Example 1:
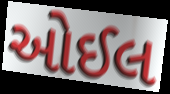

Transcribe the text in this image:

ઓઈલ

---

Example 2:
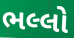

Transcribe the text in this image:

ભલ્લો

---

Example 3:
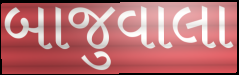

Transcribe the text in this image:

બાજુવાલા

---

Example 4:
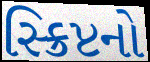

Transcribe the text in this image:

સ્ક્રિપ્ટનો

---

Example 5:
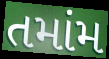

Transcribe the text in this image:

તમાંમ